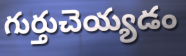
గుర్తుచెయ్యడం